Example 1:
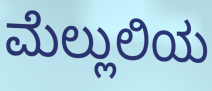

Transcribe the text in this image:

ಮೆಲ್ಲುಲಿಯ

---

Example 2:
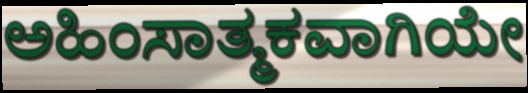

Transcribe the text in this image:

ಅಹಿಂಸಾತ್ಮಕವಾಗಿಯೇ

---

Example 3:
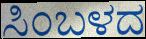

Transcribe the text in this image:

ಸಿಂಬಳದ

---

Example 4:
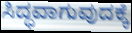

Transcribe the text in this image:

ಸಿದ್ಧವಾಗುವುದಕ್ಕೆ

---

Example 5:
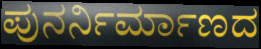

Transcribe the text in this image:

ಪುನರ್ನಿರ್ಮಾಣದ